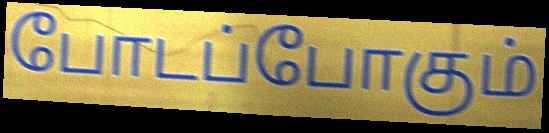
போடப்போகும்